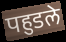
पहुडले